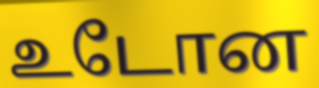
உடோன